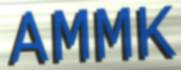
AMMK